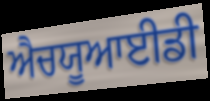
ਐਚਯੂਆਈਡੀ